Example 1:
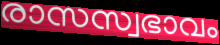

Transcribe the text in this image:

രാസസ്വഭാവം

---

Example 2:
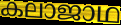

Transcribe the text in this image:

കലാജാഥ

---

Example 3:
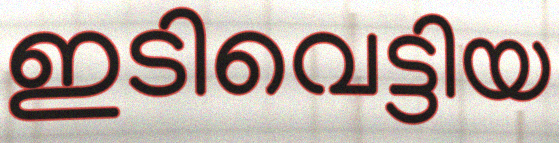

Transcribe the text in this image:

ഇടിവെട്ടിയ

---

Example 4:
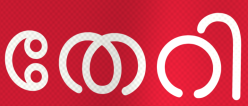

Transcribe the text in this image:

തേറി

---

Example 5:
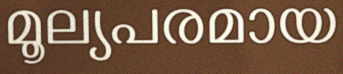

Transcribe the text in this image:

മൂല്യപരമായ